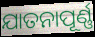
ଯାତନାପୂର୍ଣ୍ଣ